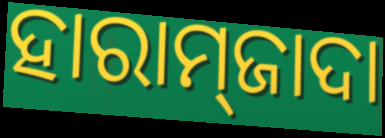
ହାରାମ୍‌ଜାଦା